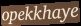
opekkhaye